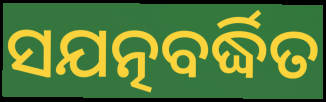
ସଯତ୍ନବର୍ଦ୍ଧିତ